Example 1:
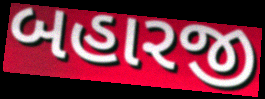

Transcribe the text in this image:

બહારજી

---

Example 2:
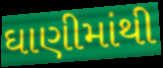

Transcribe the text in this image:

ઘાણીમાંથી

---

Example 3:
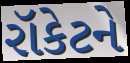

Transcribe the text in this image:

રૉકેટને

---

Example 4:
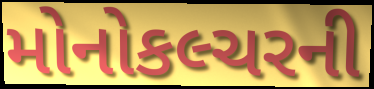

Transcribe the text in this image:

મોનોકલ્ચરની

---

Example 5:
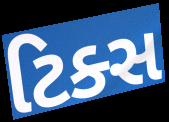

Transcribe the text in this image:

ટિક્સ